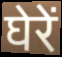
घेरें